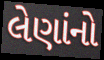
લેણાંનો